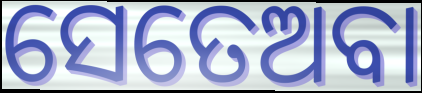
ସେତେଅବା